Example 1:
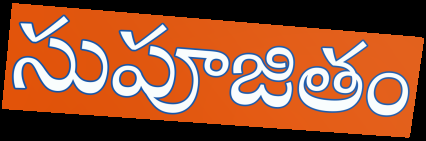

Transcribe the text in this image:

సుపూజితం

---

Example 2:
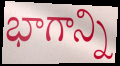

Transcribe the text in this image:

భాగాన్ని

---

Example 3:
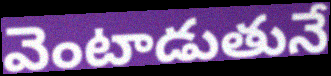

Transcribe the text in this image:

వెంటాడుతునే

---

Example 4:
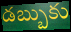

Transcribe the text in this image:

డబ్బుకు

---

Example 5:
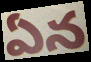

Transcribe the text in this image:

ఏన